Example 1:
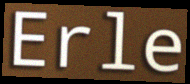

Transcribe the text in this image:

Erle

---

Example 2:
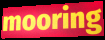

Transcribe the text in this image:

mooring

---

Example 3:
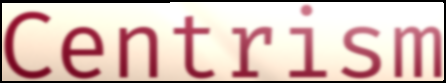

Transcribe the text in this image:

Centrism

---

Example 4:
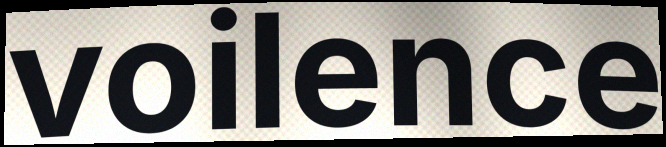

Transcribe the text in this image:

voilence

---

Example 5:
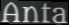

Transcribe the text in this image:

Anta